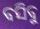
ବସିବୁ